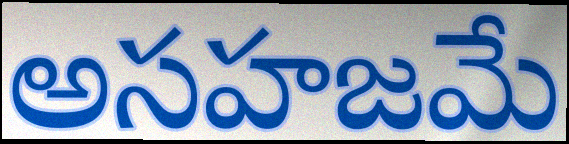
అసహజమే